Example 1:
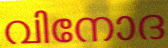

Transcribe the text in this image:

വിനോദ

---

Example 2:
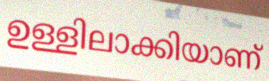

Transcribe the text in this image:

ഉള്ളിലാക്കിയാണ്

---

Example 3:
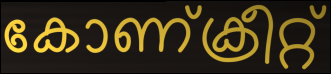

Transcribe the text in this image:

കോണ്ക്രീറ്റ്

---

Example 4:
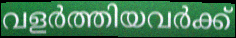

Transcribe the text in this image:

വളർത്തിയവർക്ക്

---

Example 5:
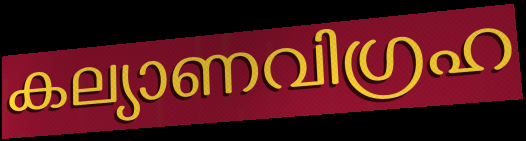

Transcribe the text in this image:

കല്യാണവിഗ്രഹ